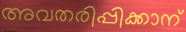
അവതരിപ്പിക്കാന്